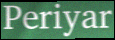
Periyar